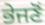
ਭੇਜਣੋਂ